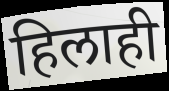
हिलाही